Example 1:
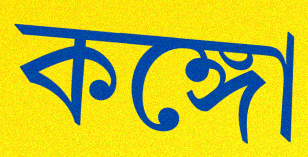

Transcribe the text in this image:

কঙ্গো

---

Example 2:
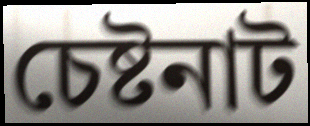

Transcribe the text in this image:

চেষ্টনাট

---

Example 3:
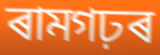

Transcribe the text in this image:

ৰামগঢ়ৰ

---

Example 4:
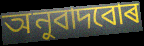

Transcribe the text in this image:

অনুবাদবোৰ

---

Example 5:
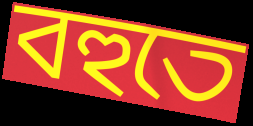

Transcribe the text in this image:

বহুতে